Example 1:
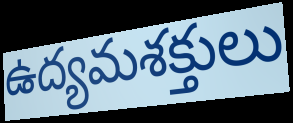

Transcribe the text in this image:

ఉద్యమశక్తులు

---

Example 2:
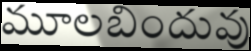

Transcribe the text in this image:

మూలబిందువు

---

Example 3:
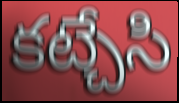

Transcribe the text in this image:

కట్చేసి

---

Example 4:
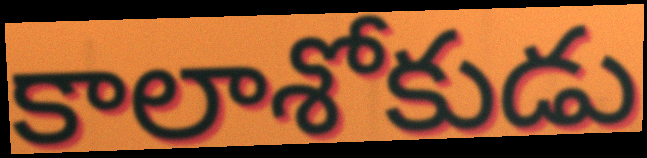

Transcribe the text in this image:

కాలాశోకుడు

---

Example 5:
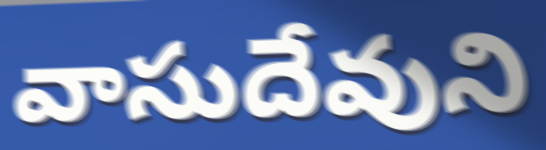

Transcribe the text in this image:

వాసుదేవుని